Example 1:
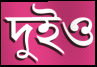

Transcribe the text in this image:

দুইও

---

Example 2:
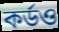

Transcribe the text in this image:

কর্ডও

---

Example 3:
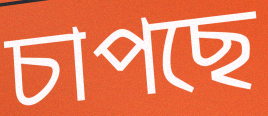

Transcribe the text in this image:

চাপছে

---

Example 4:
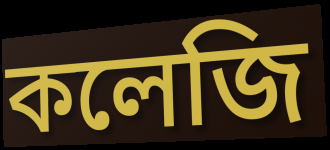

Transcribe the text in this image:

কলেজি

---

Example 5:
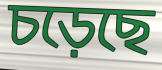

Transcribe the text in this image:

চড়েছে